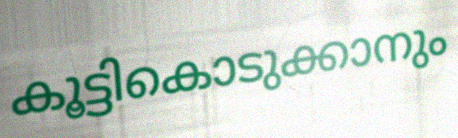
കൂട്ടികൊടുക്കാനും